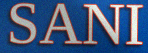
SANI